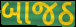
બાજઠ